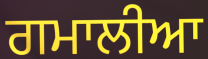
ਗਮਾਲੀਆ